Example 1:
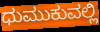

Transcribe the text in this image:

ಧುಮುಕುವಲ್ಲಿ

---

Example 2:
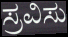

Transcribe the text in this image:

ಸ್ರವಿಸು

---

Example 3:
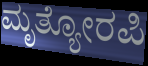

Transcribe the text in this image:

ಮೃತ್ಯೋರಪಿ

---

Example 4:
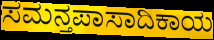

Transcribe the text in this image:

ಸಮನ್ತಪಾಸಾದಿಕಾಯ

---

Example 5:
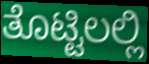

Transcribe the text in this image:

ತೊಟ್ಟಿಲಲ್ಲಿ